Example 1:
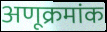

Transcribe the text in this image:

अणूक्रमांक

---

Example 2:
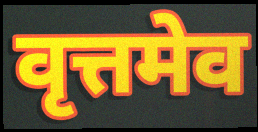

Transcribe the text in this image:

वृत्तमेव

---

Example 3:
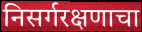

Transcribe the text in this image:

निसर्गरक्षणाचा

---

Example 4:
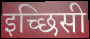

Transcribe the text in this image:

इच्छिसी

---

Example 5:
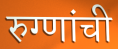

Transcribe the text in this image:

रुग्णांची